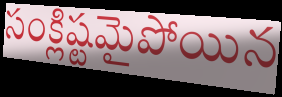
సంక్లిష్టమైపోయిన